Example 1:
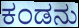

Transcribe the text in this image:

ಕಂಡನು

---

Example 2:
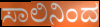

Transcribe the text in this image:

ಸಾಲಿನಿಂದ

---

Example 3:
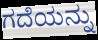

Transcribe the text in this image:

ಗದೆಯನ್ನು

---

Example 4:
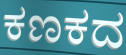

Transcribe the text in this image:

ಕಣಕದ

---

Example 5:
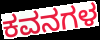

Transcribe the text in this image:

ಕವನಗಳ